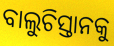
ବାଲୁଚିସ୍ତାନକୁ